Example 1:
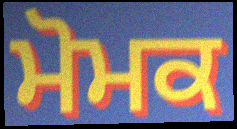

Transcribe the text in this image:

ਮੋਮਕ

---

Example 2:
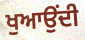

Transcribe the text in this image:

ਖੁਆਉਂਦੀ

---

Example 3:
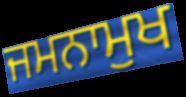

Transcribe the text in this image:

ਜਮਨਾਮੁਖ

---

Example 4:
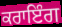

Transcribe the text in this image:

ਕਰਾਇੰਗ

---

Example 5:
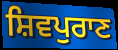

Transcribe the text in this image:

ਸ਼ਿਵਪੁਰਾਣ